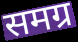
समग्र